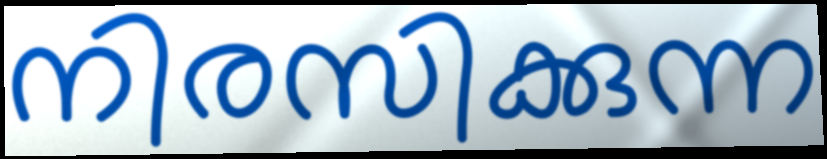
നിരസിക്കുന്ന